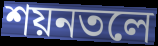
শয়নতলে